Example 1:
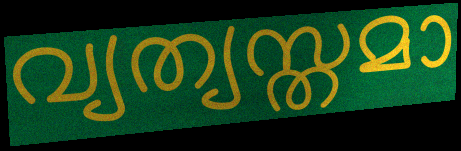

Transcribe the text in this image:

വ്യത്യസ്തമാ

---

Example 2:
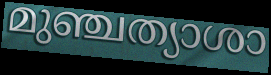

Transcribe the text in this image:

മുഞ്ചത്യാശാ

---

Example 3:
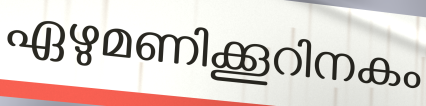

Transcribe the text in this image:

ഏഴുമണിക്കൂറിനകം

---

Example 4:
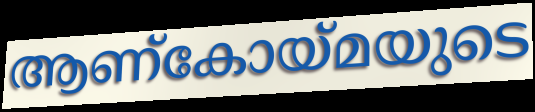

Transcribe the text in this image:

ആണ്കോയ്മയുടെ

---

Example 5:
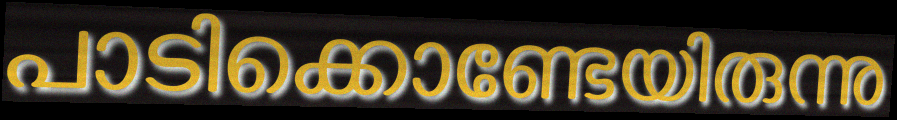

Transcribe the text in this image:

പാടിക്കൊണ്ടേയിരുന്നു